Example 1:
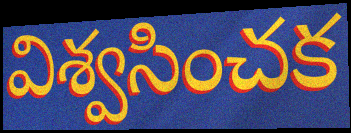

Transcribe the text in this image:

విశ్వసించక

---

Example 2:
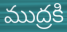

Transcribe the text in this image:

ముద్రకి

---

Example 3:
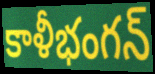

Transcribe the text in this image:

కాళీభంగన్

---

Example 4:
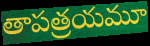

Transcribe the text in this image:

తాపత్రయమూ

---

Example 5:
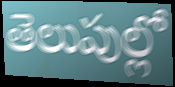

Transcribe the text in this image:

తెలుపుల్లో